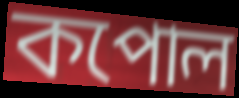
কপোল